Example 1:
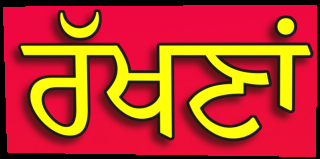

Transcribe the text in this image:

ਰੱਖਣਾਂ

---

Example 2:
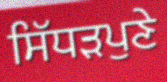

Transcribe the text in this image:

ਸਿੱਧੜਪੁਣੇ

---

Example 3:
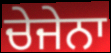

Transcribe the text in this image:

ਚੇਜੇਨਾ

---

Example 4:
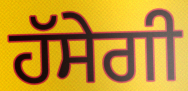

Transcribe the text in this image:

ਹੱਸੇਗੀ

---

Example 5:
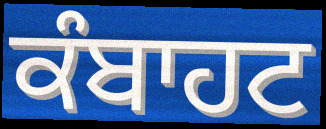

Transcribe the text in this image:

ਕੰਬਾਹਟ